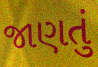
જાણતું